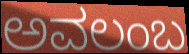
ಅವಲಂಬ